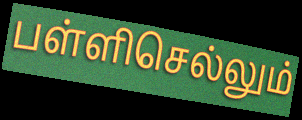
பள்ளிசெல்லும்